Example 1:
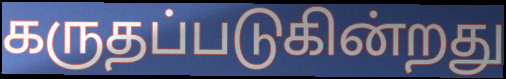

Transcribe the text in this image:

கருதப்படுகின்றது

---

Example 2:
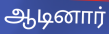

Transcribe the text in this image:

ஆடினார்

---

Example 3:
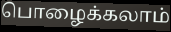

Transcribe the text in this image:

பொழைக்கலாம்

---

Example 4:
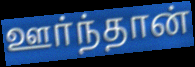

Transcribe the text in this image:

ஊர்ந்தான்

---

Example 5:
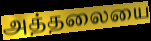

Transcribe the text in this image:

அத்தலையை